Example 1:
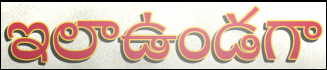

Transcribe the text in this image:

ఇలాఉండగా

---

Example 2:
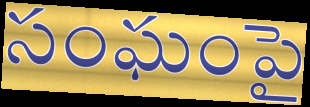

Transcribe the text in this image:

సంఘంపై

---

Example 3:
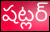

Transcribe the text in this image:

షట్లర్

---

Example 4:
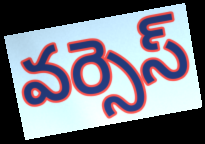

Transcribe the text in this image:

వర్సెస్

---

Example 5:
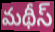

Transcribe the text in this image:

మథీస్